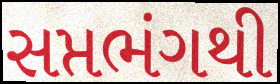
સપ્તભંગથી